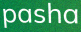
pasha